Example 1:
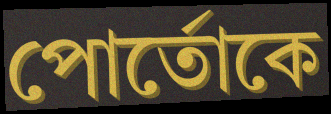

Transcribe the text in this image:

পোর্তোকে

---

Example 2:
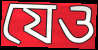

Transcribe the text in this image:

যেও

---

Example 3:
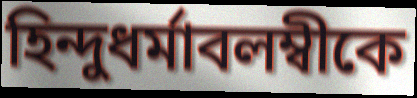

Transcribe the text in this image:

হিন্দুধর্মাবলম্বীকে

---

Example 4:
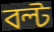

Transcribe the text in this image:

বল্ট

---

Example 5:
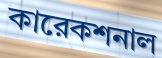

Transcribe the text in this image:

কারেকশনাল